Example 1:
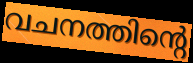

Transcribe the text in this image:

വചനത്തിന്റെ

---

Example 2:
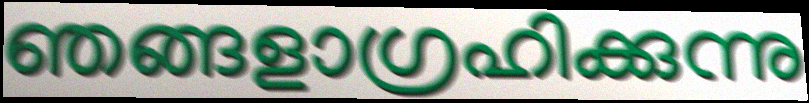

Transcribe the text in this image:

ഞങ്ങളാഗ്രഹിക്കുന്നു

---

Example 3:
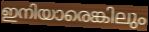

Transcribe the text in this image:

ഇനിയാരെങ്കിലും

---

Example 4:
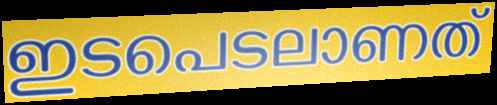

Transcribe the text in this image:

ഇടപെടലാണത്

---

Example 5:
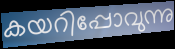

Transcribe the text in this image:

കയറിപ്പോവുന്നു